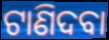
ଟାଣିଦବା